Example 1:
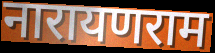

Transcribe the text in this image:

नारायणराम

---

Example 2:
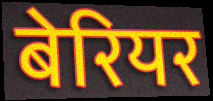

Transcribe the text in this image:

बेरियर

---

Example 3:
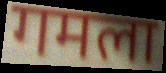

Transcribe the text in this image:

गमला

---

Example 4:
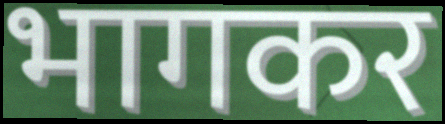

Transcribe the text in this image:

भागकर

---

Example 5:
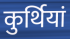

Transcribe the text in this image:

कुर्थियां